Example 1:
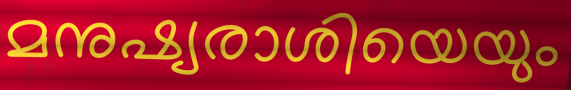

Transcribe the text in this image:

മനുഷ്യരാശിയെയും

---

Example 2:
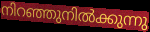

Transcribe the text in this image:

നിറഞ്ഞുനിൽക്കുന്നു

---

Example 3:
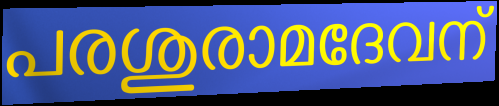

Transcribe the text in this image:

പരശുരാമദേവന്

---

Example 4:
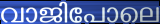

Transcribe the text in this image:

വാജിപോലെ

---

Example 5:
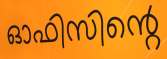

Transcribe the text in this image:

ഓഫിസിന്റെ